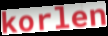
korlen